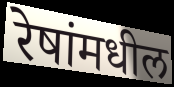
रेषांमधील